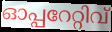
ഓപ്പറേറ്റിവ്